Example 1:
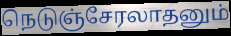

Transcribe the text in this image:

நெடுஞ்சேரலாதனும்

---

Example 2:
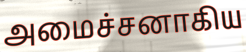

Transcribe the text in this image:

அமைச்சனாகிய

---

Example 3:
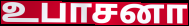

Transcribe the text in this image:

உபாசனா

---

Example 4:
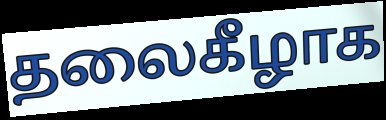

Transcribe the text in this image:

தலைகீழாக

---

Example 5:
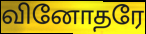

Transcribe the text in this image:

வினோதரே